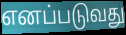
எனப்படுவது